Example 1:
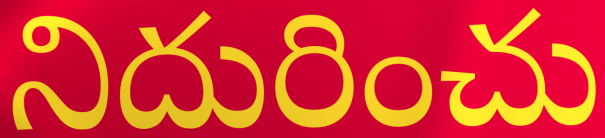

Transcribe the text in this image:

నిదురించు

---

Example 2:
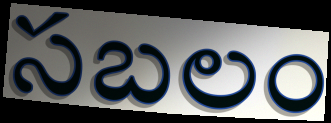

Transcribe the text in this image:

సబలం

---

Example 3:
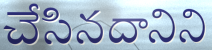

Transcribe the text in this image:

చేసినదానిని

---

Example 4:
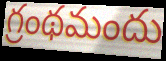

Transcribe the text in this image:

గ్రంథమందు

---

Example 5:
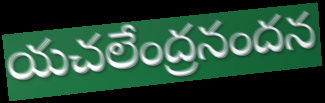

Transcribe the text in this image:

యచలేంద్రనందన